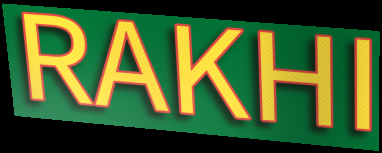
RAKHI